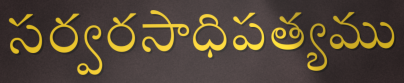
సర్వరసాధిపత్యము